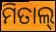
ମିତାଲ୍